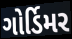
ગોર્ડિમર